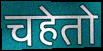
चहेतो